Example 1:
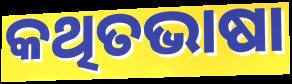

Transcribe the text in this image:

କଥିତଭାଷା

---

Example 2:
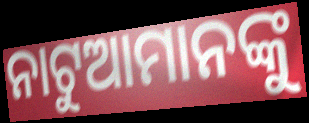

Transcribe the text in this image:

ନାଟୁଆମାନଙ୍କୁ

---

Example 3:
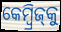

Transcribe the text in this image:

କେମ୍ୱ୍ରିଜ୍‌କୁ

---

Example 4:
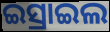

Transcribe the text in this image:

ଇସ୍ରାଇଲ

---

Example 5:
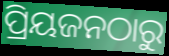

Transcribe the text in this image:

ପ୍ରିୟଜନଠାରୁ